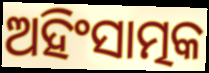
ଅହିଂସାତ୍ମକ